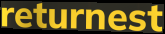
returnest